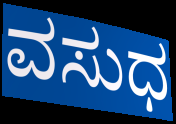
ವಸುಧ